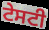
ਟੇਸਟੀ